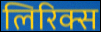
लिरिक्स